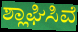
ಶ್ಲಾಘಿಸಿವೆ